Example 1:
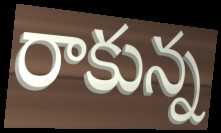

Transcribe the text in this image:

రాకున్న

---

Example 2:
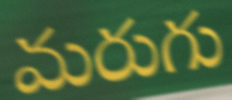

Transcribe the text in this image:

మరుగు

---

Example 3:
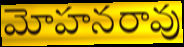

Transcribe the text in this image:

మోహనరావు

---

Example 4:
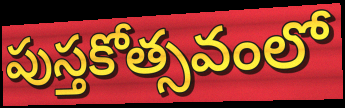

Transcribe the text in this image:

పుస్తకోత్సవంలో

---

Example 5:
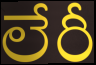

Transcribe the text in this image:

లేరీ